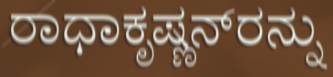
ರಾಧಾಕೃಷ್ಣನ್‌ರನ್ನು